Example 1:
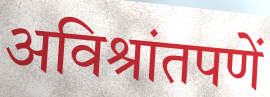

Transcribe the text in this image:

अविश्रांतपणें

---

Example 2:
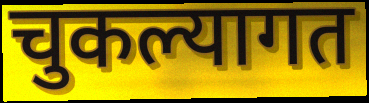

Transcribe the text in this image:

चुकल्यागत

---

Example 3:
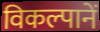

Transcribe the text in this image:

विकल्पानें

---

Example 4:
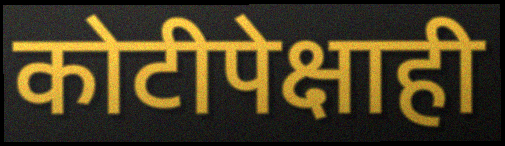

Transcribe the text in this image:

कोटीपेक्षाही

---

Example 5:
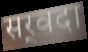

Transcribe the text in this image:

सर्वदा